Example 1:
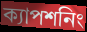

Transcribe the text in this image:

ক্যাপশনিং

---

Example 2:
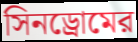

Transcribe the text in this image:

সিনড্রোমের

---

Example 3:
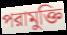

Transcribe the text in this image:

পরামুক্তি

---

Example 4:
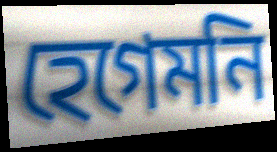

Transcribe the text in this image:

হেগেমনি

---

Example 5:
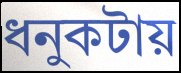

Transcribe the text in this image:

ধনুকটায়